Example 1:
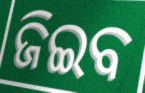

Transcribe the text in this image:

ଜିଇବ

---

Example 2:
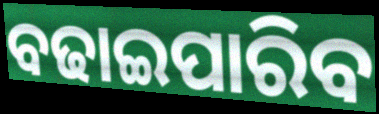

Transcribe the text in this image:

ବଢାଇପାରିବ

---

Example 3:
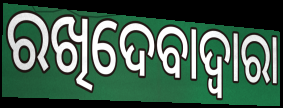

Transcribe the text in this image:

ରଖିଦେବାଦ୍ୱାରା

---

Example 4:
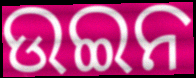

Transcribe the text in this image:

ଉଇନ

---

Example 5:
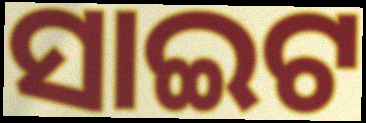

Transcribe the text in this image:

ସାଇଟ